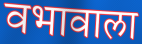
वभावाला